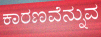
ಕಾರಣವೆನ್ನುವ